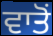
ਵਾਤੋਂ